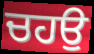
ਚਹਉ